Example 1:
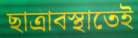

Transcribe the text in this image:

ছাত্রাবস্থাতেই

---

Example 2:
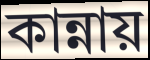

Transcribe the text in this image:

কান্নায়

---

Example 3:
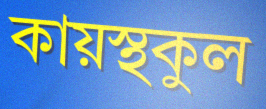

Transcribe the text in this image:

কায়স্থকুল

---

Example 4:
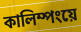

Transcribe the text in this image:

কালিম্পংয়ে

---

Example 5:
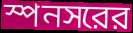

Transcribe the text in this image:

স্পনসরের